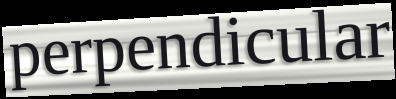
perpendicular